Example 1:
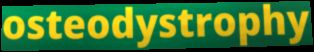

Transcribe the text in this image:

osteodystrophy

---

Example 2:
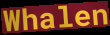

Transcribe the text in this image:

Whalen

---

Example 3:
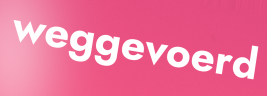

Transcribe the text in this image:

weggevoerd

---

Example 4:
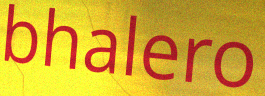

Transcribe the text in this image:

bhalero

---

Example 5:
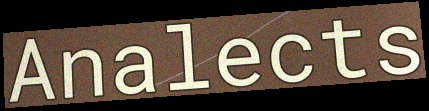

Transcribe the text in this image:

Analects